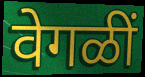
वेगळीं